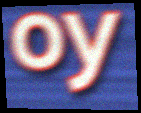
oy